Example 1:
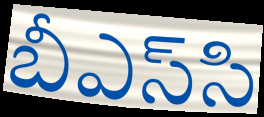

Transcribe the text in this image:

బీఎస్‌సి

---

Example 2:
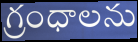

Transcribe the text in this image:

గ్రంధాలను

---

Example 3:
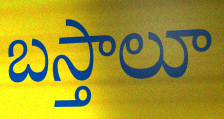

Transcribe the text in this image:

బస్తాలూ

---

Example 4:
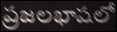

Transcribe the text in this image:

ప్రజలభాషలో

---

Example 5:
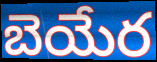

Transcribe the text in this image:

బెయేర